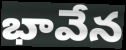
భావేన